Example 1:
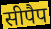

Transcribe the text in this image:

सीपैप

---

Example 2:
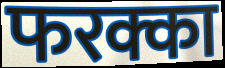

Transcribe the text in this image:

फरक्का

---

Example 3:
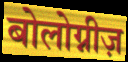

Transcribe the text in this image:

बोलोग्नीज़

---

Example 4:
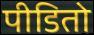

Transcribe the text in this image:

पीडितो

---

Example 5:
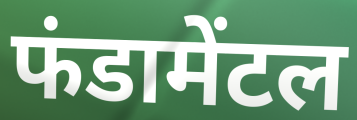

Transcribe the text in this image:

फंडामेंटल